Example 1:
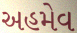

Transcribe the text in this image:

અહમેવ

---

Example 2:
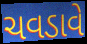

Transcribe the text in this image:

ચવડાવે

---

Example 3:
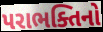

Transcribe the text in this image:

પરાભક્તિનો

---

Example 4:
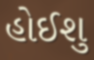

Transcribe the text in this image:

હોઈશુ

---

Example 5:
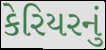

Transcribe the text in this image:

કેરિયરનું